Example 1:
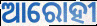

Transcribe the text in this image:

ଆରୋହୀ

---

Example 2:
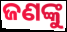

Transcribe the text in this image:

ଜଣଙ୍କୁ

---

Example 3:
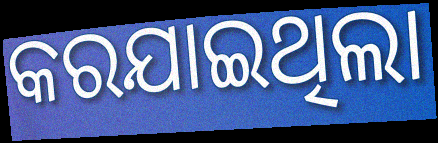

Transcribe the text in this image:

କରଯାଇଥିଲା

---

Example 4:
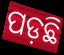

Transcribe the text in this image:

ପଡ଼ଛି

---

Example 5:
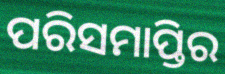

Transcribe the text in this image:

ପରିସମାପ୍ତିର